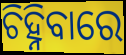
ଚିହ୍ନିବାରେ